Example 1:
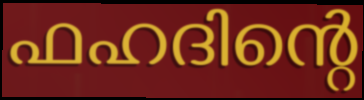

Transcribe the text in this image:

ഫഹദിന്റെ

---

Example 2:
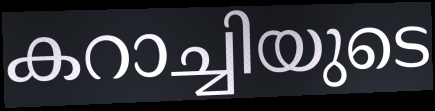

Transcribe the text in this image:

കറാച്ചിയുടെ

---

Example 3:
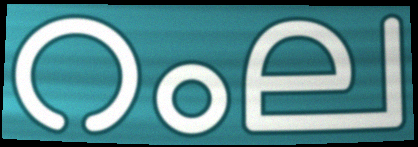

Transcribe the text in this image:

റംല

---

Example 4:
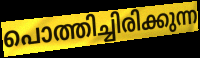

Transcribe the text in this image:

പൊത്തിച്ചിരിക്കുന്ന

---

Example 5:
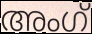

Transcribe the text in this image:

അംഗ്